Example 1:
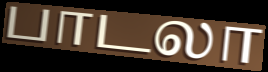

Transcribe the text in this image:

பாடலா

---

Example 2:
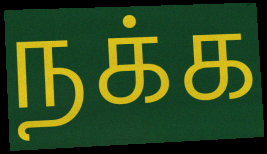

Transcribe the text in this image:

நக்க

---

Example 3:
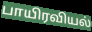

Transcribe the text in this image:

பாயிரவியல்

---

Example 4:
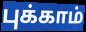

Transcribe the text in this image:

புக்காம்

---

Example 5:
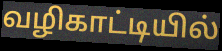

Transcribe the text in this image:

வழிகாட்டியில்